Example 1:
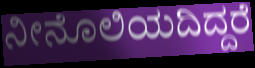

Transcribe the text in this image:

ನೀನೊಲಿಯದಿದ್ದರೆ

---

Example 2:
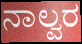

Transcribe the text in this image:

ನಾಲ್ವರ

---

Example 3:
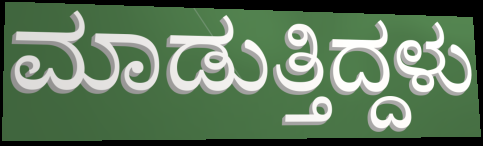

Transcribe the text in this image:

ಮಾಡುತ್ತಿದ್ದಳು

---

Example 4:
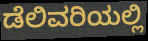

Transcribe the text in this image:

ಡೆಲಿವರಿಯಲ್ಲಿ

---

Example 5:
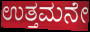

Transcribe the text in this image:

ಉತ್ತಮನೇ